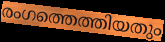
രംഗത്തെത്തിയതും